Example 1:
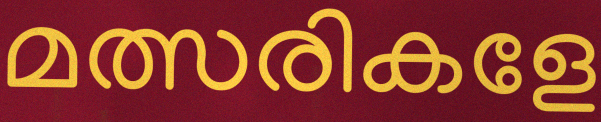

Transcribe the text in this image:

മത്സരികളേ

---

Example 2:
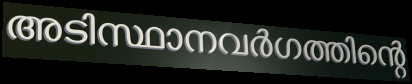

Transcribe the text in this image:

അടിസ്ഥാനവർഗത്തിന്റെ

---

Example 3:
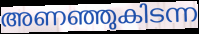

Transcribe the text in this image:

അണഞ്ഞുകിടന്ന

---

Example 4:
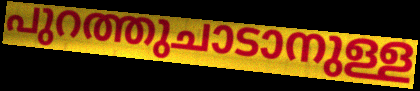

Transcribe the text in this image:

പുറത്തുചാടാനുള്ള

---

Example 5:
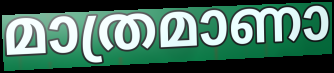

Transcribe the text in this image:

മാത്രമാണാ